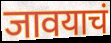
जावयाचं